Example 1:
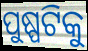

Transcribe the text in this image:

ପୁଷ୍ପଟିକୁ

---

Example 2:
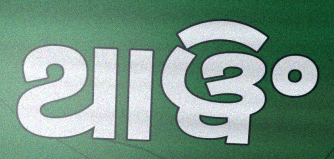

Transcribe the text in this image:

ଥାୱିଂ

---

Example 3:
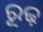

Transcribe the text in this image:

ରୂଢ଼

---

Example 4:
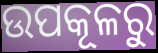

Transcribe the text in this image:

ଉପକୂଳରୁ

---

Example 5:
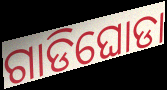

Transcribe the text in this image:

ଗାଡିଘୋଡା